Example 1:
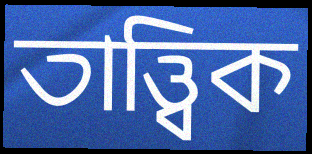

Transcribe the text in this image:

তাত্ত্বিক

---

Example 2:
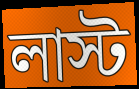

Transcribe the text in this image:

লাস্ট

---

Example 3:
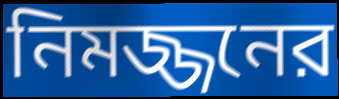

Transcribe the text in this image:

নিমজ্জনের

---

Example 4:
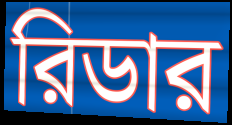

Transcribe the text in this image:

রিডার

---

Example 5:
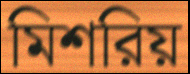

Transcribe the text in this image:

মিশরিয়